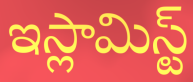
ఇస్లామిస్ట్